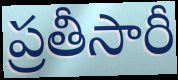
ప్రతీసారీ